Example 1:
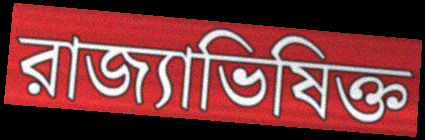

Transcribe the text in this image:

রাজ্যাভিষিক্ত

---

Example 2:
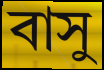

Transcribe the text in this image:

বাসু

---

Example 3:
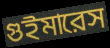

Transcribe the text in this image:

গুইমারেস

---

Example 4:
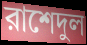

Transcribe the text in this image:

রাশেদুল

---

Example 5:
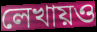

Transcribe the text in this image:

লেখায়ও